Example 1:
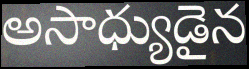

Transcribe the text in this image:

అసాధ్యుడైన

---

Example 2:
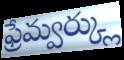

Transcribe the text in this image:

ఫ్రేమ్వర్క్లు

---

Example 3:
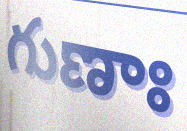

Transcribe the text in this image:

గుణాః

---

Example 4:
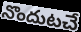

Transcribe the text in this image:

నొందుటచే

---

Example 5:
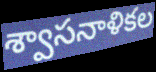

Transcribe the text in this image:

శ్వాసనాళికల